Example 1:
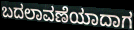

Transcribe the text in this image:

ಬದಲಾವಣೆಯಾದಾಗ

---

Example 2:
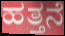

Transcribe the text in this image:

ಹತ್ತನೆ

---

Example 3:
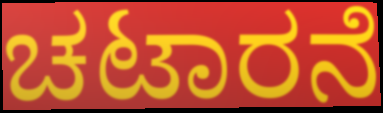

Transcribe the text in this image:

ಚಟಾರನೆ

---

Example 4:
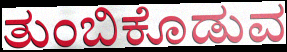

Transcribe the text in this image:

ತುಂಬಿಕೊಡುವ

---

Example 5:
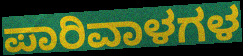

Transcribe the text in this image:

ಪಾರಿವಾಳಗಳ